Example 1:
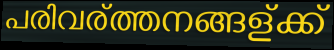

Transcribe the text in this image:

പരിവര്ത്തനങ്ങള്ക്ക്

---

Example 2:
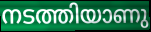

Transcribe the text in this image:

നടത്തിയാണു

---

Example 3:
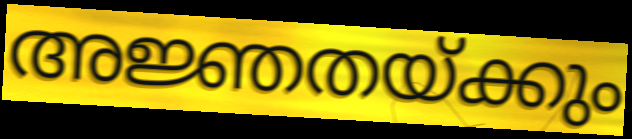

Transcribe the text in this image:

അജ്ഞതയ്ക്കും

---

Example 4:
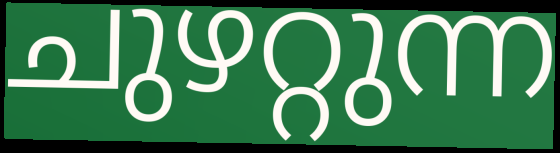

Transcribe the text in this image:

ചുഴറ്റുന്ന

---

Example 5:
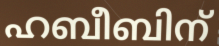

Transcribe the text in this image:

ഹബീബിന്